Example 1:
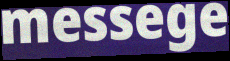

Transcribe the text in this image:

messege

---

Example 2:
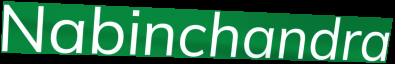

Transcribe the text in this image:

Nabinchandra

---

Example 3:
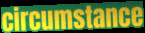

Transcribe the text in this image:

circumstance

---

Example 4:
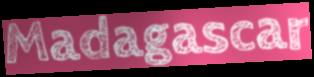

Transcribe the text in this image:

Madagascar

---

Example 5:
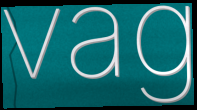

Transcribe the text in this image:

vag